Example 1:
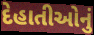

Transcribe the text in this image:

દેહાતીઓનું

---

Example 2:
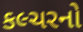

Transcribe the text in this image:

કલ્ચરનો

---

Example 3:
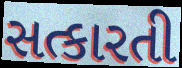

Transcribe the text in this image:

સત્કારતી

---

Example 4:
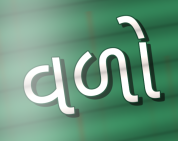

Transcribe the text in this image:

વળો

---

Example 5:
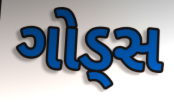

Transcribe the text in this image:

ગોડ્સ